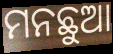
ମନଛୁଆ